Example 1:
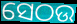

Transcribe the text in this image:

ସେଠଉ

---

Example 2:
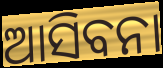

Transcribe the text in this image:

ଆସିବନା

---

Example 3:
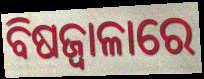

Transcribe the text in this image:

ବିଷଜ୍ୱାଳାରେ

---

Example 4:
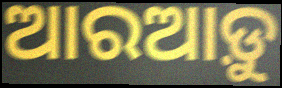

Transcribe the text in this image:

ଆରଆଡ଼ୁ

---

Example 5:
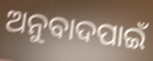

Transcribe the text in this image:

ଅନୁବାଦପାଇଁ